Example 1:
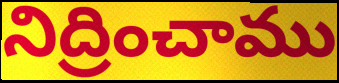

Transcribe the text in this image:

నిద్రించాము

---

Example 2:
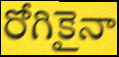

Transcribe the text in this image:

రోగికైనా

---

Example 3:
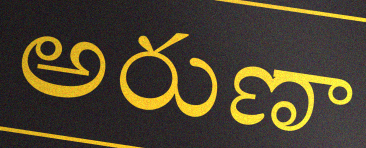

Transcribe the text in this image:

అరుణా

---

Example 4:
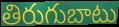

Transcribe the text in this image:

తిరుగుబాటు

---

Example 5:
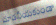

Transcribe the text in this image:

చూడనీయకుండా